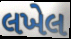
લખેલ